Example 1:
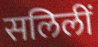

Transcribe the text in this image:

सलिलीं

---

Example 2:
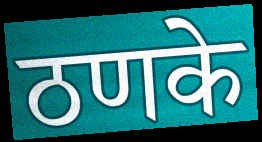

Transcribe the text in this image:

ठणके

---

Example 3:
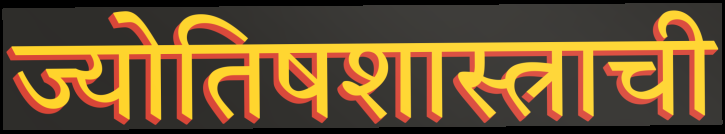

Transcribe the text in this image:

ज्योतिषशास्त्राची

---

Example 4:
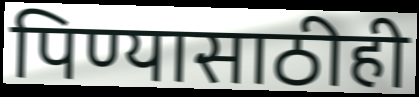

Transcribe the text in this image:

पिण्यासाठीही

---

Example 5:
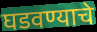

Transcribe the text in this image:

घडवण्याचे